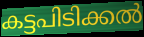
കട്ടപിടിക്കൽ